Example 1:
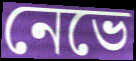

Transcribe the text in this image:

নেভে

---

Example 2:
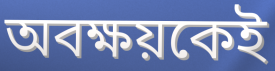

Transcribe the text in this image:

অবক্ষয়কেই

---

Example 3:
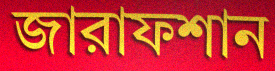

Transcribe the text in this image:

জারাফশান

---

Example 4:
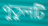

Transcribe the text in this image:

পুতুলটি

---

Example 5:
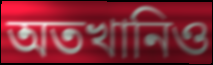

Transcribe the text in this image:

অতখানিও